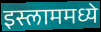
इस्लाममध्ये